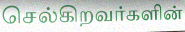
செல்கிறவர்களின்